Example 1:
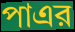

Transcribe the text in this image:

পাএর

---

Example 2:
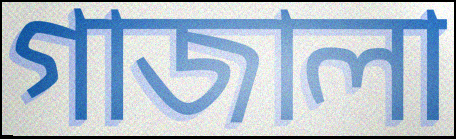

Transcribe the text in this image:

গাজালা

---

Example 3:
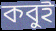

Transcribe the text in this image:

কবুই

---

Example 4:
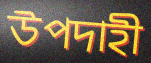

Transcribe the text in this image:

উপদাহী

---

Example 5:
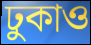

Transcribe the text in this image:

ঢুকাও